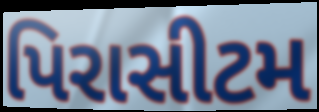
પિરાસીટમ